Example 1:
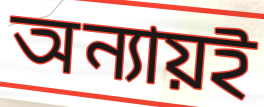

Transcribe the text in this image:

অন্যায়ই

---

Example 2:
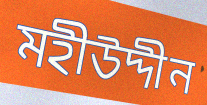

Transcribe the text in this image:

মহীউদ্দীন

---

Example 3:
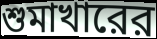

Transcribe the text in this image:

শুমাখারের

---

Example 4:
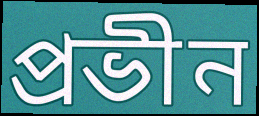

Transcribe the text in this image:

প্রভীন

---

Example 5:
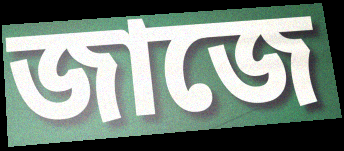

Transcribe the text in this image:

জাজে